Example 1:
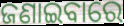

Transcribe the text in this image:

ଜଣାଇବାରେ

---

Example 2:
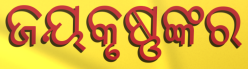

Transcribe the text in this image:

ଜୟକୃଷ୍ଣଙ୍କର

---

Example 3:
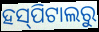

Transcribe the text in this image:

ହସ୍‍ପିଟାଲରୁ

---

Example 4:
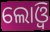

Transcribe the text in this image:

ଲୋଓ୍ବି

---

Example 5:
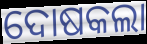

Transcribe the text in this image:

ଦୋଷକଲା